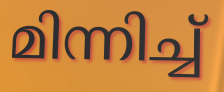
മിന്നിച്ച്